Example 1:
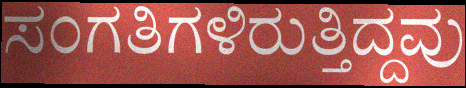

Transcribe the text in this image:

ಸಂಗತಿಗಳಿರುತ್ತಿದ್ದವು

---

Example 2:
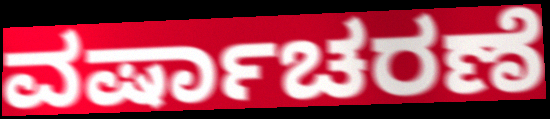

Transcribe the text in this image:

ವರ್ಷಾಚರಣೆ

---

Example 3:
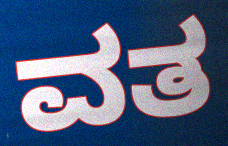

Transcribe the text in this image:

ವತ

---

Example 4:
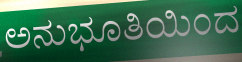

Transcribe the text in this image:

ಅನುಭೂತಿಯಿಂದ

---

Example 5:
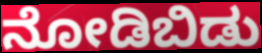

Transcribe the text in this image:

ನೋಡಿಬಿಡು